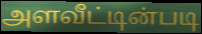
அளவீட்டின்படி